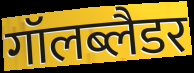
गॉलब्लैडर